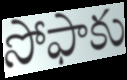
సోఫాకు